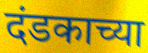
दंडकाच्या